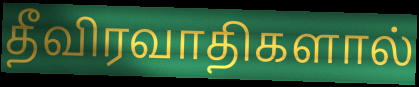
தீவிரவாதிகளால்